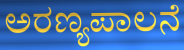
ಅರಣ್ಯಪಾಲನೆ